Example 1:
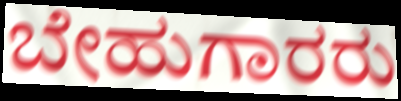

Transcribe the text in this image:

ಬೇಹುಗಾರರು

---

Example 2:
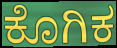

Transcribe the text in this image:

ಕೊಗಿಕ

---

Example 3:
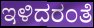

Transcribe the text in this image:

ಇಳಿದರಂತೆ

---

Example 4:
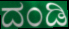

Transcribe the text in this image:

ದಂಡಿ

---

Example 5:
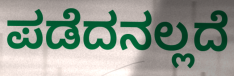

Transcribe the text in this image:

ಪಡೆದನಲ್ಲದೆ